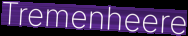
Tremenheere